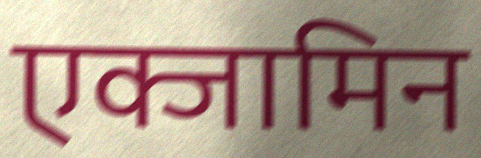
एक्जामिन